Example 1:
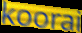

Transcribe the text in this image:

koorai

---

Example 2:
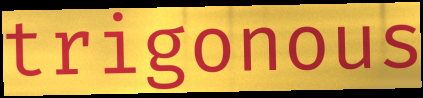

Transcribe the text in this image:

trigonous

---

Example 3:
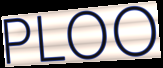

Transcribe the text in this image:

PLOO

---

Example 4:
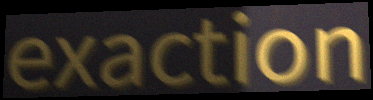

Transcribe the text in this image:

exaction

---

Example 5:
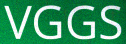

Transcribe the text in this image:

VGGS